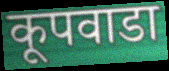
कूपवाडा